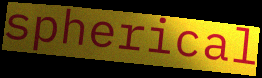
spherical